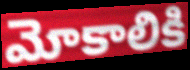
మోకాలికి